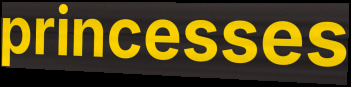
princesses